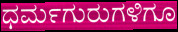
ಧರ್ಮಗುರುಗಳಿಗೂ